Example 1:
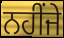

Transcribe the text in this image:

ਨਹੀਂਜੇ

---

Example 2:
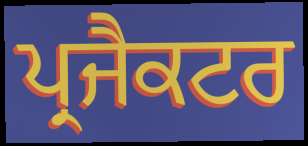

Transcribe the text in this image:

ਪ੍ਰਜੈਕਟਰ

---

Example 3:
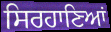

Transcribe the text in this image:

ਸਿਰਹਾਣਿਆਂ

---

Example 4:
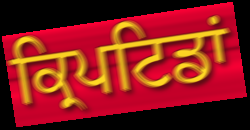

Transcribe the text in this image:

ਕ੍ਰਿਪਟਿਡਾਂ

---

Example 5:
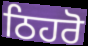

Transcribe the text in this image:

ਠਿਹਰੋ